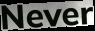
Never